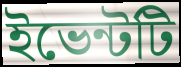
ইভেন্টটি